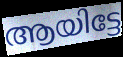
ആയിട്ടേ